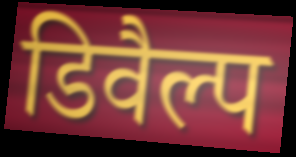
डिवैल्प